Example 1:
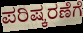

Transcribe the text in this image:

ಪರಿಷ್ಕರಣೆಗೆ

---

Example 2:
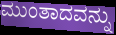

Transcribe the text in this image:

ಮುಂತಾದವನ್ನು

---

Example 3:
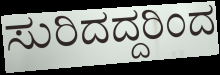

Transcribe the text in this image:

ಸುರಿದದ್ದರಿಂದ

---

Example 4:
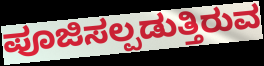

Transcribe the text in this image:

ಪೂಜಿಸಲ್ಪಡುತ್ತಿರುವ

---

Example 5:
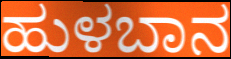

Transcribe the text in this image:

ಹುಳಬಾನ